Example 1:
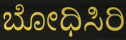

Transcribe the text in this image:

ಬೋಧಿಸಿರಿ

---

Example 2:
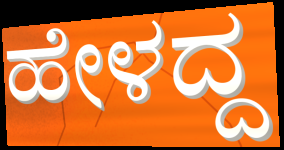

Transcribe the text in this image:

ಹೇಳದ್ದ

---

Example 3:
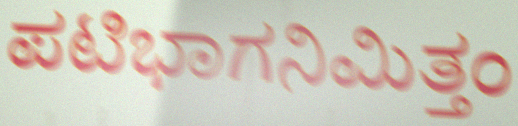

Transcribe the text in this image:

ಪಟಿಭಾಗನಿಮಿತ್ತಂ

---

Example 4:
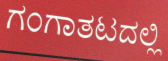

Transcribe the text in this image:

ಗಂಗಾತಟದಲ್ಲಿ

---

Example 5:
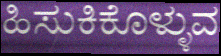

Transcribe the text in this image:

ಹಿಸುಕಿಕೊಳ್ಳುವ